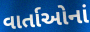
વાર્તાઓનાં